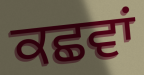
ਕਛਵਾਂ